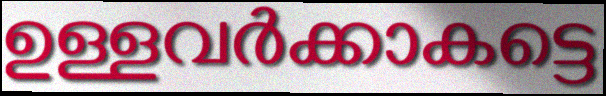
ഉള്ളവർക്കാകട്ടെ